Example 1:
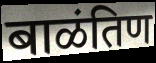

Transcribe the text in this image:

बाळंतिण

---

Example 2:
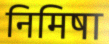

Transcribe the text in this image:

निमिषा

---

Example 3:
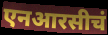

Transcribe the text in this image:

एनआरसीचं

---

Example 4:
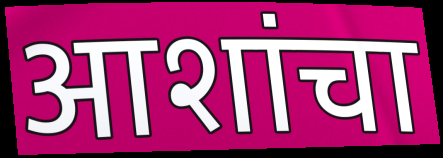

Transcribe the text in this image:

आशांचा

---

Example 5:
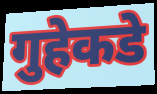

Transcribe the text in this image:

गुहेकडे